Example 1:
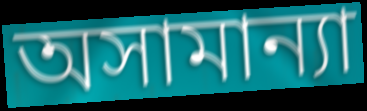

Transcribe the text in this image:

অসামান্যা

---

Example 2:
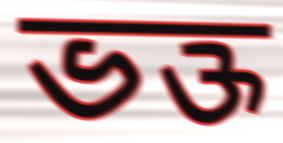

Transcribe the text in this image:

ভক্ত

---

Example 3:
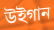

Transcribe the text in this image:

উইগান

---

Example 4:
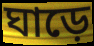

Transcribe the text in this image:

ঘাড়ে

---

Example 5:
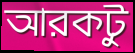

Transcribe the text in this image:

আরকটু